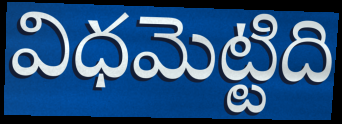
విధమెట్టిది